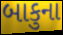
બાકુના